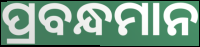
ପ୍ରବନ୍ଧମାନ